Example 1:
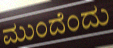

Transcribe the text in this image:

ಮುಂದೆಂದು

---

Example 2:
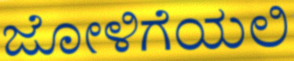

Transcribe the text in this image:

ಜೋಳಿಗೆಯಲಿ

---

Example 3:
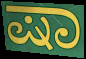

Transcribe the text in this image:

ಷಾ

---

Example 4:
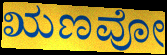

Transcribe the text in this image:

ಋಣವೋ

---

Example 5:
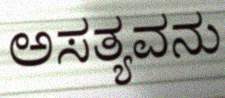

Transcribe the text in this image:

ಅಸತ್ಯವನು